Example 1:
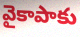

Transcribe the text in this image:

వైకాపాకు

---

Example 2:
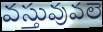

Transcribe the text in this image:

వస్తువువలె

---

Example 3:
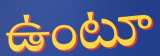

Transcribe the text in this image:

ఉంటూ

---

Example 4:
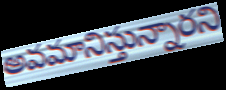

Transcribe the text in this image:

అవమానిస్తున్నారని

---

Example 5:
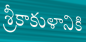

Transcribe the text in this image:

శ్రీకాకుళానికి